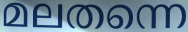
മലതന്നെ